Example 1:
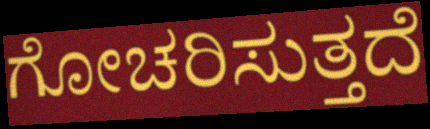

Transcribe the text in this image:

ಗೋಚರಿಸುತ್ತದೆ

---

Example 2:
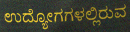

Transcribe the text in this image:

ಉದ್ಯೋಗಗಳಲ್ಲಿರುವ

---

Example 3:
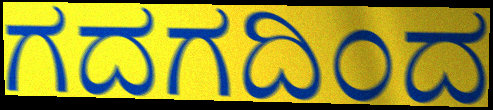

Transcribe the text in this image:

ಗದಗದಿಂದ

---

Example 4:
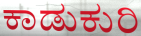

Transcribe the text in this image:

ಕಾಡುಕುರಿ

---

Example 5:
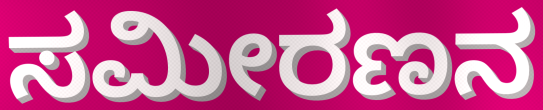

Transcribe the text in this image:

ಸಮೀರಣನ